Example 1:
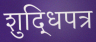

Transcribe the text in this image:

शुद्धिपत्र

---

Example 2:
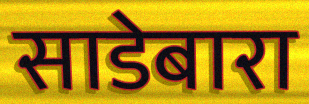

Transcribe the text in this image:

साडेबारा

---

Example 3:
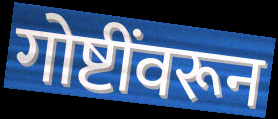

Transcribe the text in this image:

गोष्टींवरून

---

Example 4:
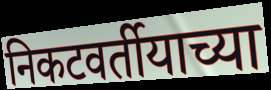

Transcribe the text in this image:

निकटवर्तीयाच्या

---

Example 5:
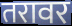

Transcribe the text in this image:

तरावर